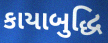
કાયાબુદ્ધિ